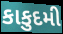
કાકુદમી